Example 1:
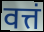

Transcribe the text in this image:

वत्तं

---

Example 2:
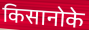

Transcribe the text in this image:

किसानोके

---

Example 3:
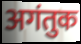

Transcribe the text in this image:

अगंतुक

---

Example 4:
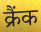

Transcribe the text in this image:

क्रैंक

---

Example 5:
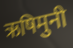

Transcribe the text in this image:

ऋषिमुनी